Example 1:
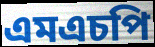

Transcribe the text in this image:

এমএচপি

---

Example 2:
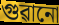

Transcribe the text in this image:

গুৱানো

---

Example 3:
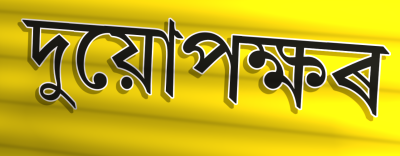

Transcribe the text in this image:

দুয়োপক্ষৰ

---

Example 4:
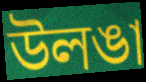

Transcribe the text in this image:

উলঙা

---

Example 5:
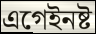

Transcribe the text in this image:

এগেইনষ্ট